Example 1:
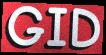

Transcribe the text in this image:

GID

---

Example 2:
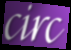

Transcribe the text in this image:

circ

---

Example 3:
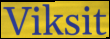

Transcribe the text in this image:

Viksit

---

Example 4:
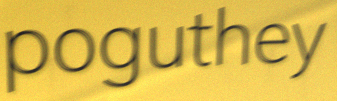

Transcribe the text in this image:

poguthey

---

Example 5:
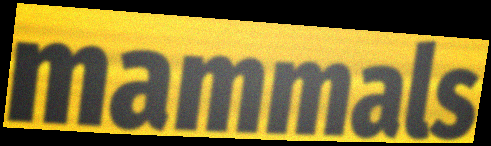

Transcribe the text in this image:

mammals